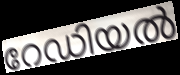
റേഡിയൽ